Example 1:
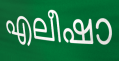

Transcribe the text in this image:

എലീഷാ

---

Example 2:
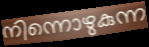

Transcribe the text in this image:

നിന്നൊഴുകുന്ന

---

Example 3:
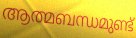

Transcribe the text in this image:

ആത്മബന്ധമുണ്ട്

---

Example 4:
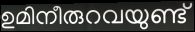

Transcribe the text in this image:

ഉമിനീരുറവയുണ്ട്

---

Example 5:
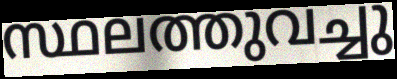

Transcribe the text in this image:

സ്ഥലത്തുവച്ചു